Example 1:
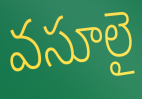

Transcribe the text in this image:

వసూలై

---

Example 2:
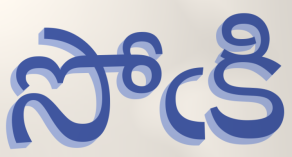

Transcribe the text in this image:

సోఁకి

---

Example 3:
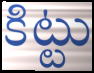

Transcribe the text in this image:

కిట్టు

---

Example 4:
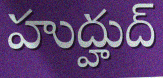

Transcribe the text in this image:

హుద్హుద్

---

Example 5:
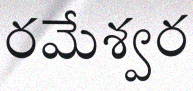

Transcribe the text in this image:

రమేశ్వర